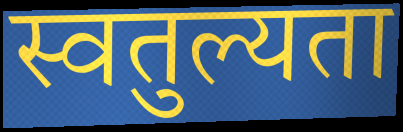
स्वतुल्यता